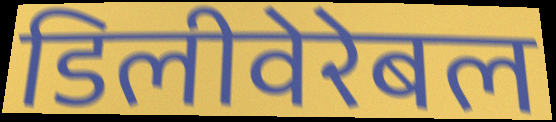
डिलीवेरेबल